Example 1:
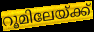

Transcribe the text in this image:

റൂമിലേയ്ക്ക്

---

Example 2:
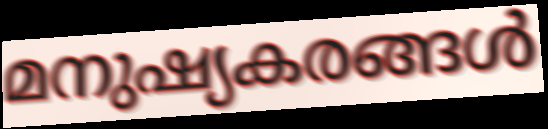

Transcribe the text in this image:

മനുഷ്യകരങ്ങൾ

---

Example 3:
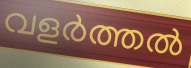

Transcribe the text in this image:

വളർത്തൽ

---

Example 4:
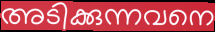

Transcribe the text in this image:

അടിക്കുന്നവനെ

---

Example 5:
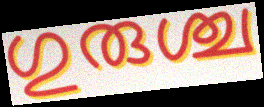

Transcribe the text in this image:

ഗുരുശ്ച